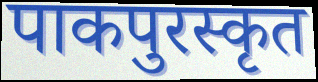
पाकपुरस्कृत